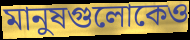
মানুষগুলোকেও